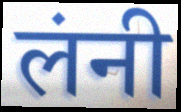
लंनी